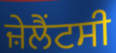
ਜ਼ੇਲੈਂਟਸੀ